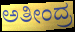
ಅತೀಂದ್ರ